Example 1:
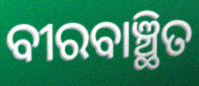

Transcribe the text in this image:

ବୀରବାଞ୍ଛିତ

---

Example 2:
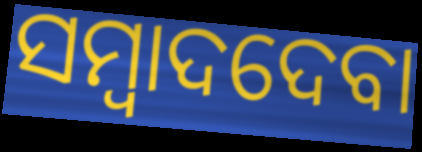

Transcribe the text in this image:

ସମ୍ବାଦଦେବା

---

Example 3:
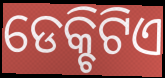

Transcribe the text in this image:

ଡେକ୍ଚିଟିଏ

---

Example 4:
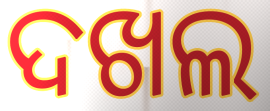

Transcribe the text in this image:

ଦଖଲ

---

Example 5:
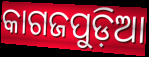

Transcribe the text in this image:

କାଗଜପୁଡ଼ିଆ